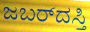
ಜಬರ್‌ದಸ್ತಿ